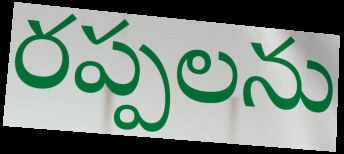
రప్పలను